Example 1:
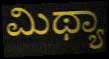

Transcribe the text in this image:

ಮಿಥ್ಯಾ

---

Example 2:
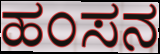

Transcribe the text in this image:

ಹಂಸನ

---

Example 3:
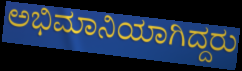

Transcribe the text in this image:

ಅಭಿಮಾನಿಯಾಗಿದ್ದರು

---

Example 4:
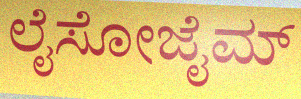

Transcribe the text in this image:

ಲೈಸೋಜೈಮ್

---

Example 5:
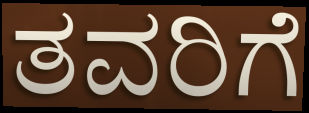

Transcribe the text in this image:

ತವರಿಗೆ